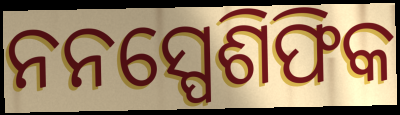
ନନସ୍ପେଶିଫିକ